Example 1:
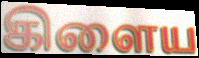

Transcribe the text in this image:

கிளைய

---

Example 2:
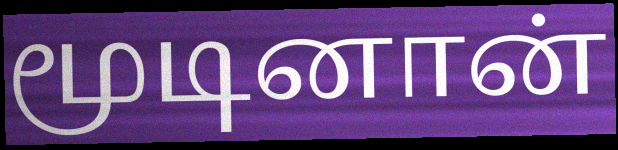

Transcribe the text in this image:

மூடினான்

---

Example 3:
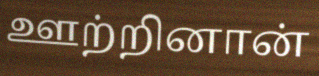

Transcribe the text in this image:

ஊற்றினான்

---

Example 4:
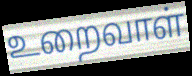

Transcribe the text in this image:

உறைவாள்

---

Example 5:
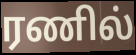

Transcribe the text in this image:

ரணில்